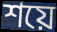
শয়ে